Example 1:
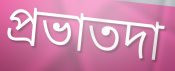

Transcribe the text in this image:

প্রভাতদা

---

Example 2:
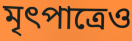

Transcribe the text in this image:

মৃৎপাত্রেও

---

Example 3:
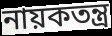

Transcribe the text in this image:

নায়কতন্ত্র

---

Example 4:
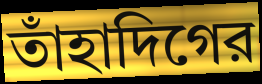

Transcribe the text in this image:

তাঁহাদিগের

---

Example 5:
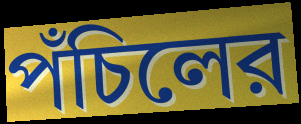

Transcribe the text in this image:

পঁচিলের